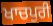
ਖਾਚਪੁਰੀ